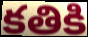
కతికి